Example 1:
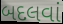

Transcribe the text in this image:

બદલવાં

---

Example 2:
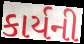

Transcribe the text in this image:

કાર્યની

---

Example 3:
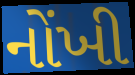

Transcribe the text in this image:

નોંખી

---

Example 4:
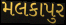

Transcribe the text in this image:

મલકાપુર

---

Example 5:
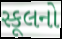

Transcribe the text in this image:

સ્કૂલનો